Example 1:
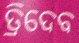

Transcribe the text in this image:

ତ୍ରିଦେବ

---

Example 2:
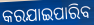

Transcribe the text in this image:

କରଯାଇପାରିବ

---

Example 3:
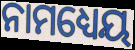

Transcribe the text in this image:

ନାମଧ୍ୟେୟ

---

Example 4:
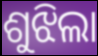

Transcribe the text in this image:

ଶୁଝିଲା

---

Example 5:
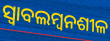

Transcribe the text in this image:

ସ୍ୱାବଲମ୍ୱନଶୀଳ